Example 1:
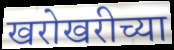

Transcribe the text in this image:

खरोखरीच्या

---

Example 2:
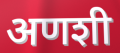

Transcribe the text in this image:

अणशी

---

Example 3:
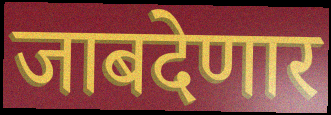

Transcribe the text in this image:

जाबदेणार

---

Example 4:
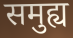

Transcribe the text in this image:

समुह्य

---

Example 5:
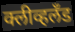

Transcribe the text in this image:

क्लीव्हलँड